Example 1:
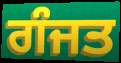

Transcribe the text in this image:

ਗੰਜਤ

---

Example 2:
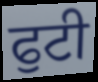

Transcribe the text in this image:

ਫੁਟੀ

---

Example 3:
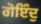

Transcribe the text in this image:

ਗੋਇੰਦੁ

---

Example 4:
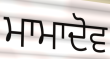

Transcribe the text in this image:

ਮਾਮਾਦੋਵ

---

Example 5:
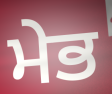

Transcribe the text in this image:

ਮੇਭ